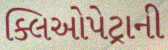
ક્લિઓપેટ્રાની